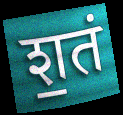
श॒तं